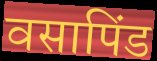
वसापिंड